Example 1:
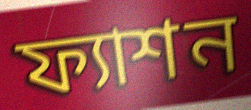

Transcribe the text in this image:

ফ্যাশন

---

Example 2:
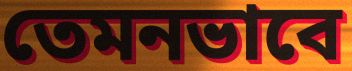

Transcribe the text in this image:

তেমনভাবে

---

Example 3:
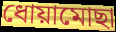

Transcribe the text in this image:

ধোয়ামোছা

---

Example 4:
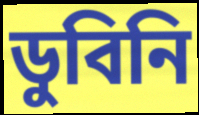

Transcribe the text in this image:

ডুবিনি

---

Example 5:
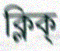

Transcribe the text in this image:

ক্লিক্